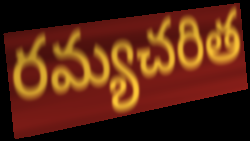
రమ్యచరిత